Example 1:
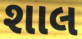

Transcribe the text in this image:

શાલ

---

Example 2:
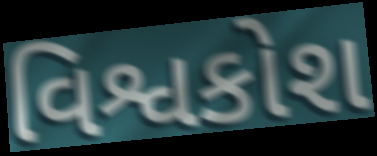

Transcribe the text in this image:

વિશ્વકોશ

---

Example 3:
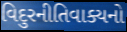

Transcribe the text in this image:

વિદુરનીતિવાક્યનો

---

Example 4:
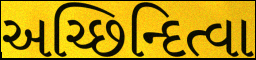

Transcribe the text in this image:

અચ્છિન્દિત્વા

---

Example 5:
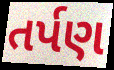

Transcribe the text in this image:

તર્પણ